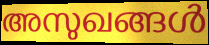
അസുഖങ്ങൾ